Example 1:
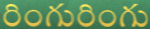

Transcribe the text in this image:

రింగురింగు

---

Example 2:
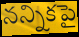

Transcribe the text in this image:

నన్నికపై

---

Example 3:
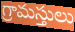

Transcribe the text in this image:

గ్రామస్తులు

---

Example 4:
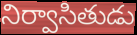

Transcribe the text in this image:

నిర్వాసితుడు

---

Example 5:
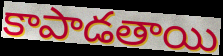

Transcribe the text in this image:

కాపాడతాయి